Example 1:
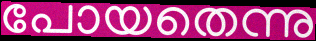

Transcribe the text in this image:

പോയതെന്നു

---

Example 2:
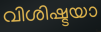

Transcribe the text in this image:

വിശിഷ്ടയാ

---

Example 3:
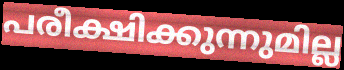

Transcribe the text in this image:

പരീക്ഷിക്കുന്നുമില്ല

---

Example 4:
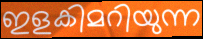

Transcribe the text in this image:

ഇളകിമറിയുന്ന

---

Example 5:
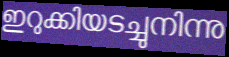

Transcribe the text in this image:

ഇറുക്കിയടച്ചുനിന്നു